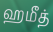
ஹமீத்